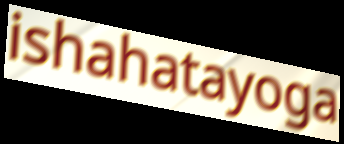
ishahatayoga